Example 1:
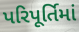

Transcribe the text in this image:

પરિપૂર્તિમાં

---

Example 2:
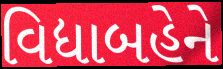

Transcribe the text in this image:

વિદ્યાબહેને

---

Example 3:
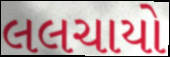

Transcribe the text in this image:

લલચાયો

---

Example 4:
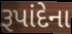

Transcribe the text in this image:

રૂપાંદેના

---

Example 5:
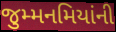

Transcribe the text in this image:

જુમ્મનમિયાંની